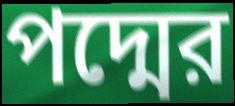
পদ্মের